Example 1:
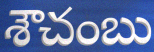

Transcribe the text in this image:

శౌచంబు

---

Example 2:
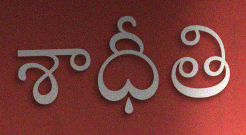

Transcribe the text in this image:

శాధీతి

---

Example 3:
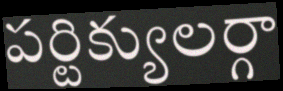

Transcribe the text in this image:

పర్టిక్యులర్గా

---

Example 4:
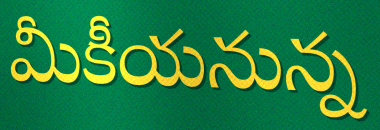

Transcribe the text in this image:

మీకీయనున్న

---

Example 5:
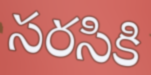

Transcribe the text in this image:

సరసికి